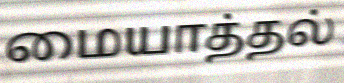
மையாத்தல்